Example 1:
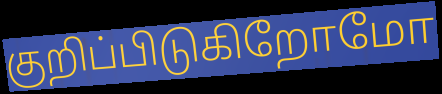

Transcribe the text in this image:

குறிப்பிடுகிறோமோ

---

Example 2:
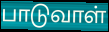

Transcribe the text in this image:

பாடுவாள்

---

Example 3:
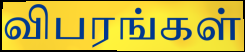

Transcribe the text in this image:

விபரங்கள்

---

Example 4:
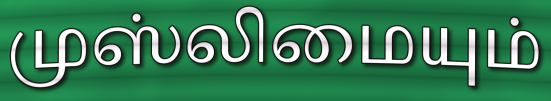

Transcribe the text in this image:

முஸ்லிமையும்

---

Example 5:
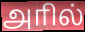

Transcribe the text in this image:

அரில்